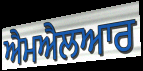
ਐਮਐਲਆਰ